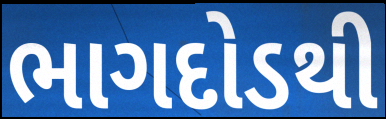
ભાગદોડથી